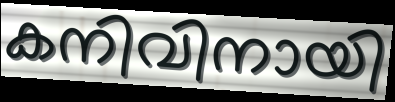
കനിവിനായി